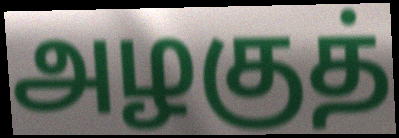
அழகுத்